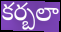
కర్బలా